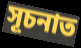
সূচনাত